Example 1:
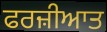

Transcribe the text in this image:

ਫਰਜ਼ੀਆਤ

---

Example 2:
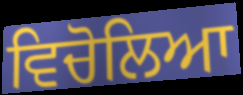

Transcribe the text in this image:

ਵਿਚੋਲਿਆ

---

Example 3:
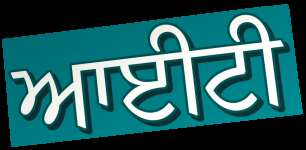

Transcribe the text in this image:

ਆਈਟੀ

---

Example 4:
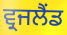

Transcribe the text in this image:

ਵ੍ਰਜਲੈਂਡ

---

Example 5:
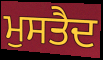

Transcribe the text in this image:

ਮੁਸਤੈਦ